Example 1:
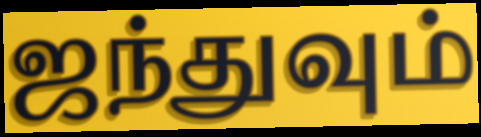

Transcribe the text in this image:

ஜந்துவும்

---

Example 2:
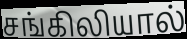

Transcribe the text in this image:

சங்கிலியால்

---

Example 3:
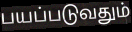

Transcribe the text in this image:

பயப்படுவதும்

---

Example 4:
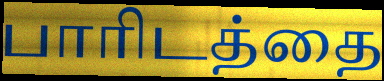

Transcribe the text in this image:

பாரிடத்தை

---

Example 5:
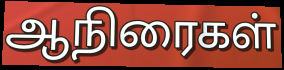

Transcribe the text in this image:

ஆநிரைகள்